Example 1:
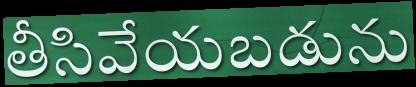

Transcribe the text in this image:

తీసివేయబడును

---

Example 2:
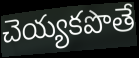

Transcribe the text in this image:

చెయ్యకపొతే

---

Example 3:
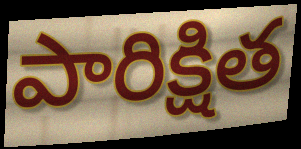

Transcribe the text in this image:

పారిక్షిత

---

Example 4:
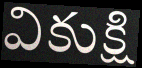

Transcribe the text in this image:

వికుక్షి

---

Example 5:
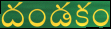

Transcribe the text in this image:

దండకం